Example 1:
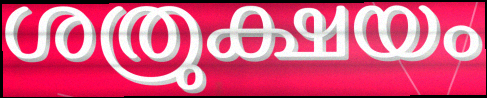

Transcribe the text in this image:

ശത്രുക്ഷയം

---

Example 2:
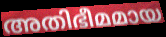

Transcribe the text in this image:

അതിഭീമമായ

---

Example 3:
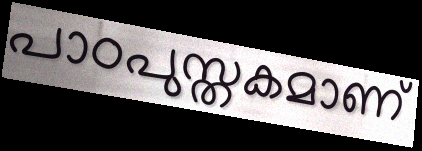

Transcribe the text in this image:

പാഠപുസ്തകമാണ്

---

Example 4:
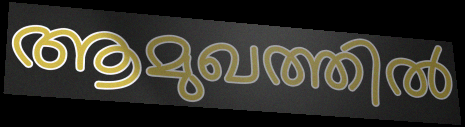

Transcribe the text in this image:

ആമുഖത്തിൽ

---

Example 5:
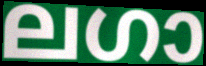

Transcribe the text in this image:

ലഗാ